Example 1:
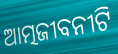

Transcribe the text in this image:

ଆତ୍ମଜୀବନୀଟି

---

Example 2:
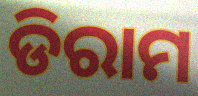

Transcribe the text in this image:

ଡିରାମ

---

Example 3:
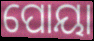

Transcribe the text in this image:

ପୋୟା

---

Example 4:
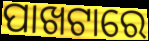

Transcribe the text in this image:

ପାଖଟାରେ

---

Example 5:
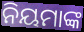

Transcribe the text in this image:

ନିୟମାଙ୍କ